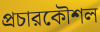
প্রচারকৌশল